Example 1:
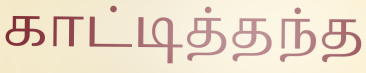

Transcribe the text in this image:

காட்டித்தந்த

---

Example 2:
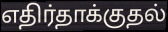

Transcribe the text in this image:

எதிர்தாக்குதல்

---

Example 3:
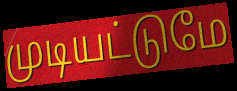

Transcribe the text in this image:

முடியட்டுமே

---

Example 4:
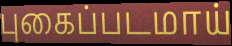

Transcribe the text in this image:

புகைப்படமாய்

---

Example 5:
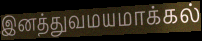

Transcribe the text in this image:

இனத்துவமயமாக்கல்